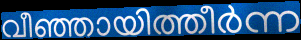
വീഞ്ഞായിത്തീർന്ന